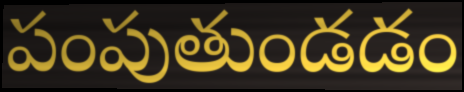
పంపుతుండడం